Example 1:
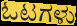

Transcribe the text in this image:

ಓಟಗಳು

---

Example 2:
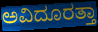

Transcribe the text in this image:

ಅವಿದೂರತ್ತಾ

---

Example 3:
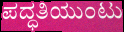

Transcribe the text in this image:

ಪದ್ಧತಿಯುಂಟು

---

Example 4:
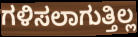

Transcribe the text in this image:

ಗಳಿಸಲಾಗುತ್ತಿಲ್ಲ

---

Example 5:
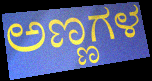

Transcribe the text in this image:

ಅಣ್ಣಗಳ